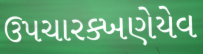
ઉપચારક્ખણેયેવ